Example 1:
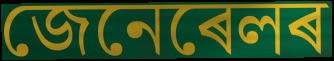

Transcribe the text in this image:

জেনেৰেলৰ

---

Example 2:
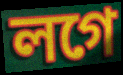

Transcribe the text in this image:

লগে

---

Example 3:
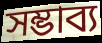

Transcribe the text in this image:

সম্ভাব্য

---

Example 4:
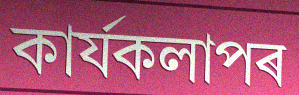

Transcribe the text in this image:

কাৰ্যকলাপৰ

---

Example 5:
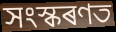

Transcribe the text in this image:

সংস্কৰণত